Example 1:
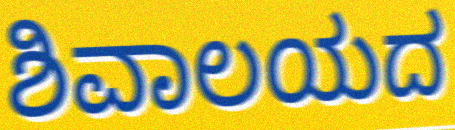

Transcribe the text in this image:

ಶಿವಾಲಯದ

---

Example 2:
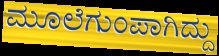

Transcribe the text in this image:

ಮೂಲೆಗುಂಪಾಗಿದ್ದು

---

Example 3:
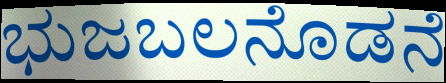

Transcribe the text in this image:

ಭುಜಬಲನೊಡನೆ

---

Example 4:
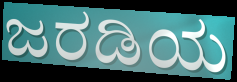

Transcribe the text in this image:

ಜರಡಿಯ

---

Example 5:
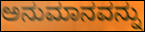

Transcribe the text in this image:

ಅನುಮಾನವನ್ನು